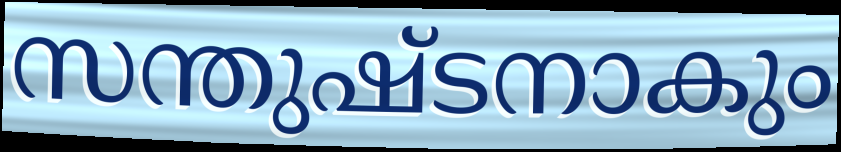
സന്തുഷ്ടനാകും